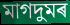
মাগদুমৰ